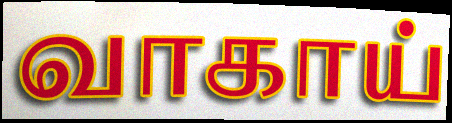
வாகாய்